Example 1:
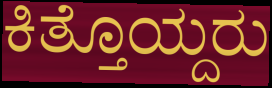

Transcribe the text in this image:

ಕಿತ್ತೊಯ್ದರು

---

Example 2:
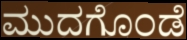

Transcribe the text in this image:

ಮುದಗೊಂಡೆ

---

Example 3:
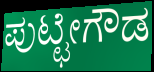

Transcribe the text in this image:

ಪುಟ್ಟೇಗೌಡ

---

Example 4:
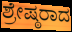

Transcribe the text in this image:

ಶ್ರೇಷ್ಠರಾದ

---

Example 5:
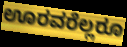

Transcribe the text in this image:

ಊರವರೆಲ್ಲರೂ